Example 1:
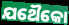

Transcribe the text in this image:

ଯଥୈକୋ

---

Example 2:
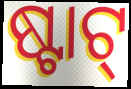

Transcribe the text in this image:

ଷ୍ଟାଟ୍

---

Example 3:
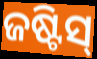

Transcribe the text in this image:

ଜଷ୍ଟିସ୍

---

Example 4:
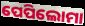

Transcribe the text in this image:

ପେପିଲୋମା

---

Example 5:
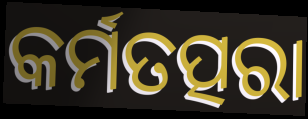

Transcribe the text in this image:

କର୍ମତତ୍ପରା